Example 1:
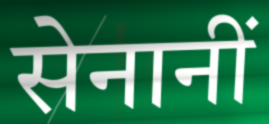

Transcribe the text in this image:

सेनानीं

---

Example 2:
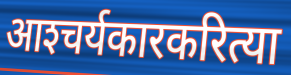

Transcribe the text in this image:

आश्‍चर्यकारकरित्या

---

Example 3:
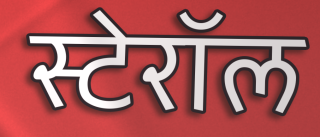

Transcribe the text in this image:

स्टेरॉल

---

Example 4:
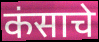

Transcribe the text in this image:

कंसाचे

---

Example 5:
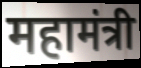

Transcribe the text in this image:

महामंत्री